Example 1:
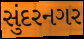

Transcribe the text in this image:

સુંદરનગર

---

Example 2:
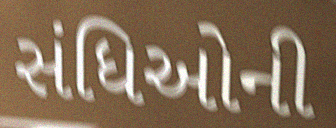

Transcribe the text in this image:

સંધિઓની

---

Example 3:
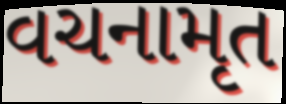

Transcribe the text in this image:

વચનામૃત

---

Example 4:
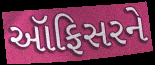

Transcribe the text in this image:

ઑફિસરને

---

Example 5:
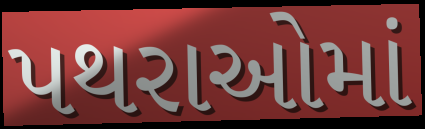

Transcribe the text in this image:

પથરાઓમાં